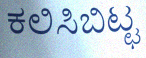
ಕಲಿಸಿಬಿಟ್ಟ